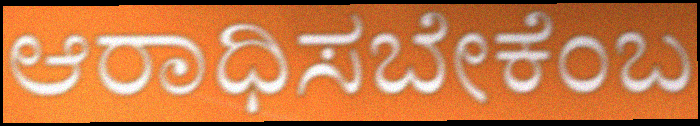
ಆರಾಧಿಸಬೇಕೆಂಬ